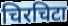
चिरचिटा